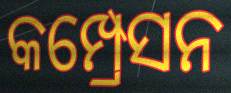
କମ୍ପ୍ରେସନ